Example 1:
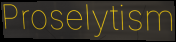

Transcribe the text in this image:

Proselytism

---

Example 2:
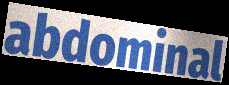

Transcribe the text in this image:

abdominal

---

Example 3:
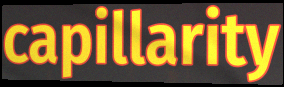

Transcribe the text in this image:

capillarity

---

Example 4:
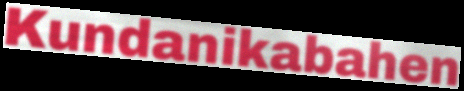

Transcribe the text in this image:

Kundanikabahen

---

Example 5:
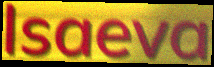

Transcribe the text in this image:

Isaeva